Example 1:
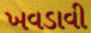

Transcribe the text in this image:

ખવડાવી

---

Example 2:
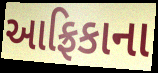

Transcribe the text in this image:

આફ્રિકાના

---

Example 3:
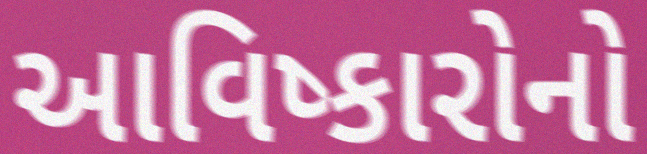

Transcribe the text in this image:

આવિષ્કારોનો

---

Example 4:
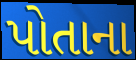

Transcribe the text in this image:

પોતાના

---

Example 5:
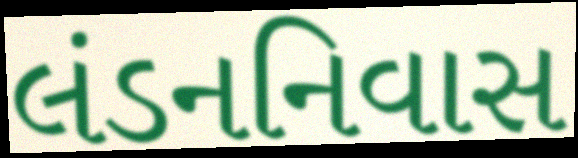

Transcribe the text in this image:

લંડનનિવાસ